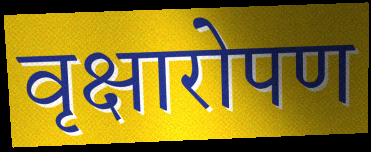
वृक्षारोपण